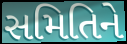
સમિતિને